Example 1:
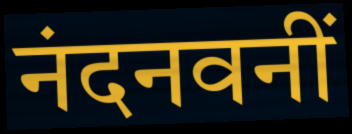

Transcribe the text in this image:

नंदनवनीं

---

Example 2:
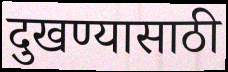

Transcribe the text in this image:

दुखण्यासाठी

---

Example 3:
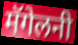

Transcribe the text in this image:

मॅगेलनी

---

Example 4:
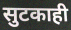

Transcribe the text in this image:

सुटकाही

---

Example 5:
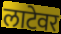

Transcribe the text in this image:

लाटेवर